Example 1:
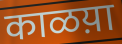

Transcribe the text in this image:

काळय़ा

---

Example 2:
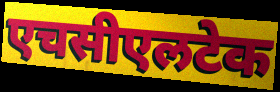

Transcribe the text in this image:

एचसीएलटेक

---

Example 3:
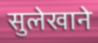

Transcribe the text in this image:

सुलेखाने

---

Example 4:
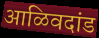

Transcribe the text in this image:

आळिवदांड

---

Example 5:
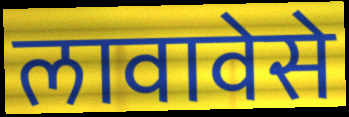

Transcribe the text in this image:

लावावेसे